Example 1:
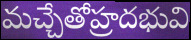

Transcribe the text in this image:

మచ్చేతోహ్రదభువి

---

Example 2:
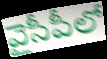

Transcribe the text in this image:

వైసీపీలో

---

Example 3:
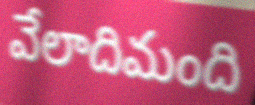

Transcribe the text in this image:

వేలాదిమంది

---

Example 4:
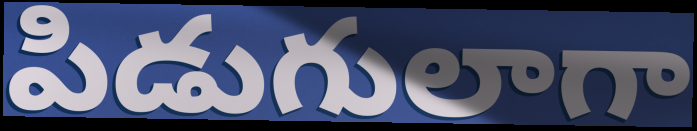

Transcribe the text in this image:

పిడుగులాగా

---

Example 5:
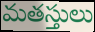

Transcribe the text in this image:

మతస్తులు